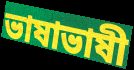
ভাষাভাষী